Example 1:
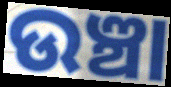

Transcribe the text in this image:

ଉଞ୍ଚା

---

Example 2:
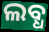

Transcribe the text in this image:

ଲବ୍ଧ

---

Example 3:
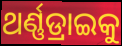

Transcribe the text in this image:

ଥର୍ଣ୍ଣଡ୍ରାଇକୁ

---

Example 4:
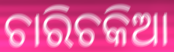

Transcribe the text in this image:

ଚାରିଚକିଆ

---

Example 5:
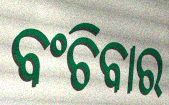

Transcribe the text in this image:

ବଂଚିବାର